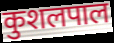
कुशलपाल